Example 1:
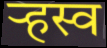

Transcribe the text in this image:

ऱ्हस्व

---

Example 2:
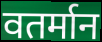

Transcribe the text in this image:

वतर्मान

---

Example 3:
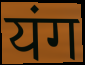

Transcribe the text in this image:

यंग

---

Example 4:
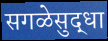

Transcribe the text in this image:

सगळेसुद्धा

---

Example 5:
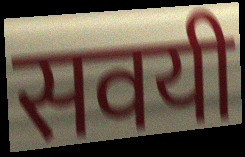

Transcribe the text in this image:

सवयी